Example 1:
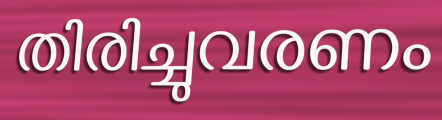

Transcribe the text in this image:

തിരിച്ചുവരണം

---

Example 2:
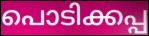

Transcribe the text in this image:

പൊടിക്കപ്പ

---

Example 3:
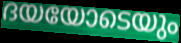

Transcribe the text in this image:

ദയയോടെയും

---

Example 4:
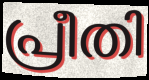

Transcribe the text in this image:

പ്രീതി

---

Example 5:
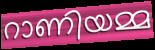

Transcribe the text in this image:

റാണിയമ്മ